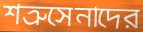
শত্রুসেনাদের